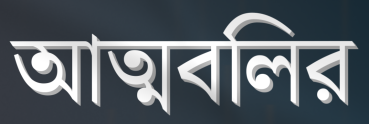
আত্মবলির